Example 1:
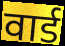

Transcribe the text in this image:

वार्ड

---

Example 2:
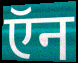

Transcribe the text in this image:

ऍन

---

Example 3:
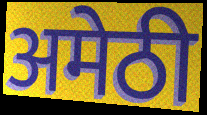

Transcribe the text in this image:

अमेठी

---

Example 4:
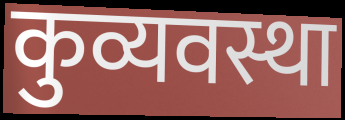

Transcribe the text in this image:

कुव्यवस्था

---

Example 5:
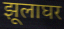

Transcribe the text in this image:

झूलाघर